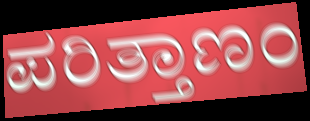
ಪರಿತ್ತಾಣಂ